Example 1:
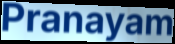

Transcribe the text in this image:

Pranayam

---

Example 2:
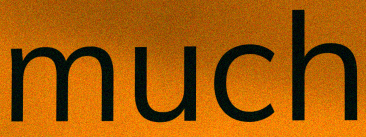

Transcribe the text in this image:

much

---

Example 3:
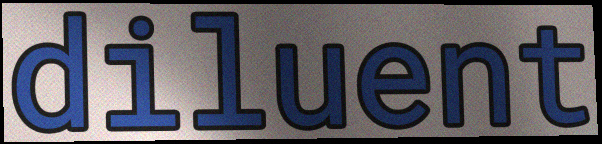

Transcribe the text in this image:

diluent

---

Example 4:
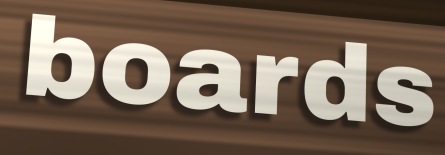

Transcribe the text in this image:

boards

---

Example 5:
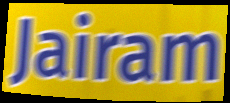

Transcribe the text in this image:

Jairam